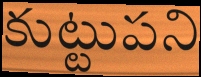
కుట్టుపని